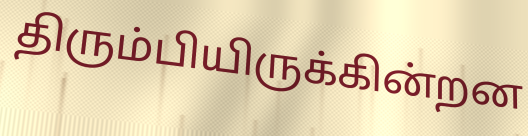
திரும்பியிருக்கின்றன